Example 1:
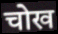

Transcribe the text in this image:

चोख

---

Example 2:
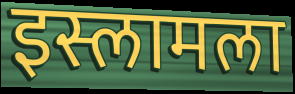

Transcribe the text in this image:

इस्लामला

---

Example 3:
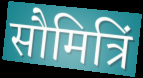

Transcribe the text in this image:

सौमित्रिं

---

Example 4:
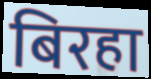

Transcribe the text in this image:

बिरहा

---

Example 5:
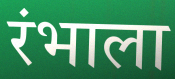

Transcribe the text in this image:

रंभाला